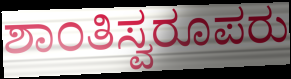
ಶಾಂತಿಸ್ವರೂಪರು